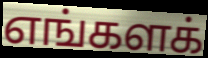
எங்களக்